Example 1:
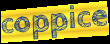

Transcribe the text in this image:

coppice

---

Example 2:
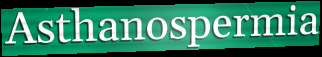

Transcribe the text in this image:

Asthanospermia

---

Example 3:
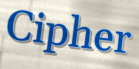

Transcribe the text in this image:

Cipher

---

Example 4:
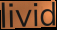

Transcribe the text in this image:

livid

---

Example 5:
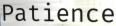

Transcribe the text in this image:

Patience